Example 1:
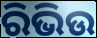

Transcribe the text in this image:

ରିଭିଉ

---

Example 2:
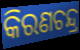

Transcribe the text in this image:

କିରଣଚନ୍ଦ୍ର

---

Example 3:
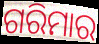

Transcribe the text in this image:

ଗରିମାର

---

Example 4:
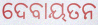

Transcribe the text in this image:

ଦେବାୟତନ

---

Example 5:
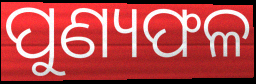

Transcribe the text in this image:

ପୁଣ୍ୟଫଳ